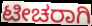
ಟೀಚರಾಗಿ